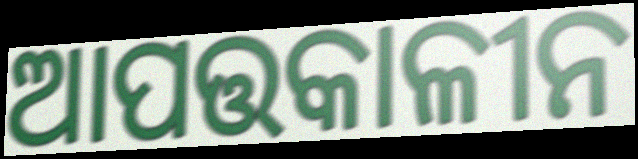
ଆପତ୍ତକାଳୀନ